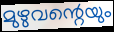
മുഴുവന്റെയും